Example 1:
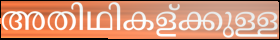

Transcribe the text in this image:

അതിഥികള്ക്കുള്ള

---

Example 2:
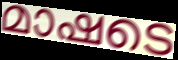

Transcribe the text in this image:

മാഷടെ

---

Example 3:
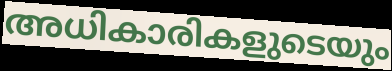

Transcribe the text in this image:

അധികാരികളുടെയും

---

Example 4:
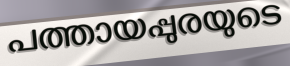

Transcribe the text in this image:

പത്തായപ്പുരയുടെ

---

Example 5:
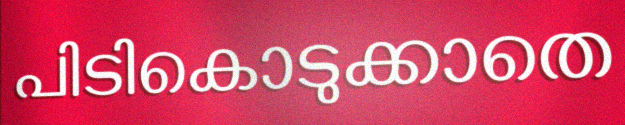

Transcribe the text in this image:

പിടികൊടുക്കാതെ